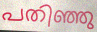
പതിഞ്ഞു